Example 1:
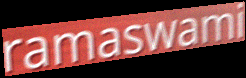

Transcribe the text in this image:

ramaswami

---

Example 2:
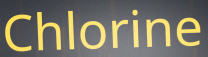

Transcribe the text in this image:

Chlorine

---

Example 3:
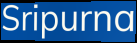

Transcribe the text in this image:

Sripurna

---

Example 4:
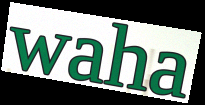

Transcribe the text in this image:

waha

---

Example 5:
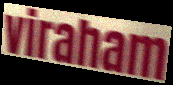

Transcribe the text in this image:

viraham